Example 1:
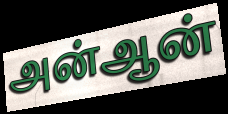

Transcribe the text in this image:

அன்ஆன்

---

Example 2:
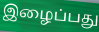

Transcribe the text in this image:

இழைப்பது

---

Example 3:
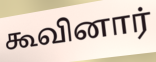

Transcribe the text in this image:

கூவினார்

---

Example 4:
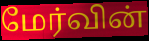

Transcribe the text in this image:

மேர்வின்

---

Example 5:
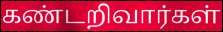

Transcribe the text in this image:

கண்டறிவார்கள்